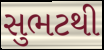
સુભટથી